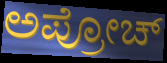
ಅಪ್ರೋಚ್